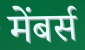
मेंबर्स